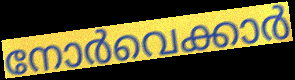
നോർവെക്കാർ